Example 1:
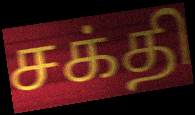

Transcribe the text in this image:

சக்தி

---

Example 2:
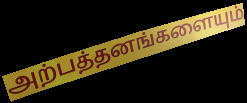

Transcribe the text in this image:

அற்பத்தனங்களையும்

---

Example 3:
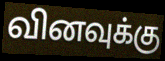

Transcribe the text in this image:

வினவுக்கு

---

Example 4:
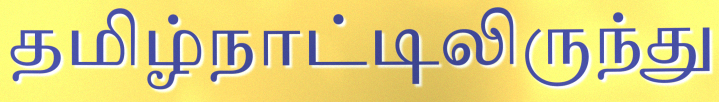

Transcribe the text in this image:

தமிழ்நாட்டிலிருந்து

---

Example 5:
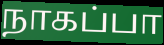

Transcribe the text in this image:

நாகப்பா